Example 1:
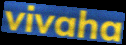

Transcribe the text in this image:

vivaha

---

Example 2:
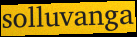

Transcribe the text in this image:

solluvanga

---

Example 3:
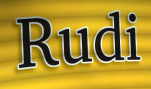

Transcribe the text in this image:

Rudi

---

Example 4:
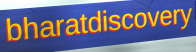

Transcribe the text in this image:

bharatdiscovery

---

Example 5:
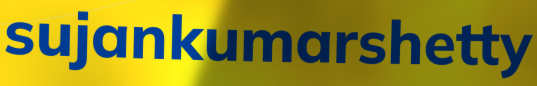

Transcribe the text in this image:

sujankumarshetty